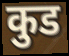
कुड